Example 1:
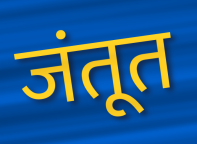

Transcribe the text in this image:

जंतूत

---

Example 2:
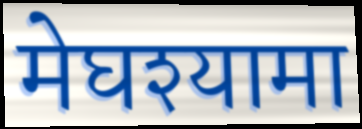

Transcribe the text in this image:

मेघश्यामा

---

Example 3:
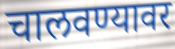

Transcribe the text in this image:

चालवण्यावर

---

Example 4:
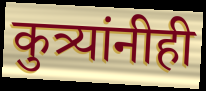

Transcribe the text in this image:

कुत्र्यांनीही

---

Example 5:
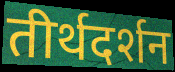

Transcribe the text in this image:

तीर्थदर्शन